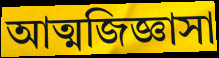
আত্মজিজ্ঞাসা